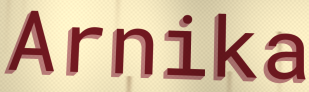
Arnika